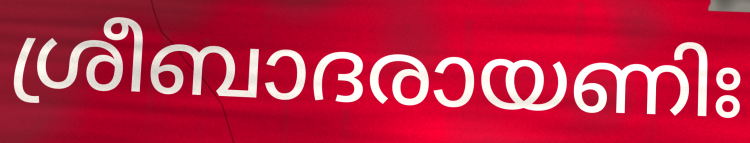
ശ്രീബാദരായണിഃ